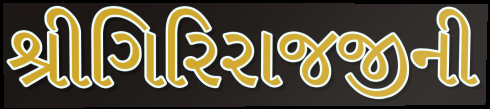
શ્રીગિરિરાજજીની